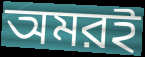
অমরই